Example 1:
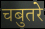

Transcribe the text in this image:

चबुतरे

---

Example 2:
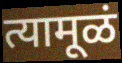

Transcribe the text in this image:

त्यामूळं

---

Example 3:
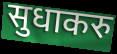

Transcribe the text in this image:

सुधाकरु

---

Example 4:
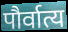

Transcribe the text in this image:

पौर्वात्य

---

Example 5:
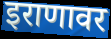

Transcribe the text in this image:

इराणावर